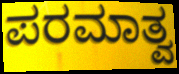
ಪರಮಾತ್ವ